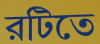
রটিতে